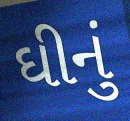
ઘીનું